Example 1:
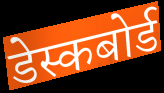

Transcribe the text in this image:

डेस्कबोर्ड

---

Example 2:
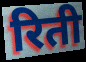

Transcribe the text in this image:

रिती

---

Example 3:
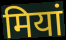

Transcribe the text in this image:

मियां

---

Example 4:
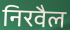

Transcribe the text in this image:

निरवैल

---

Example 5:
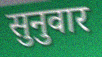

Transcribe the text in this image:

सुनुवार